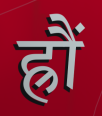
ह्रौं